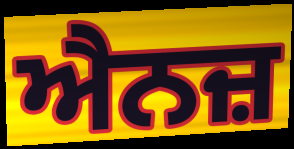
ਐਨਜ਼